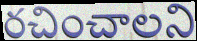
రచించాలని